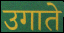
उगाते